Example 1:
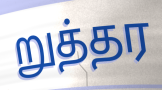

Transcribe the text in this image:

றுத்தர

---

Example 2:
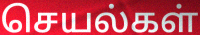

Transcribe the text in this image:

செயல்கள்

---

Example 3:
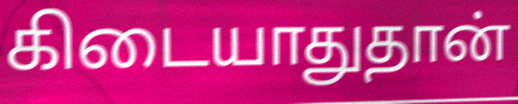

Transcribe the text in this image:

கிடையாதுதான்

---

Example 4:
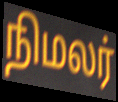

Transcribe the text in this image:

நிமலர்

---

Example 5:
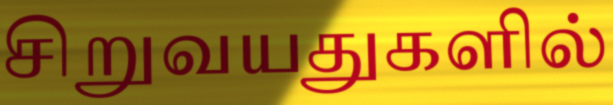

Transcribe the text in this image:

சிறுவயதுகளில்